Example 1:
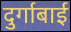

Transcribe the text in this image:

दुर्गाबाई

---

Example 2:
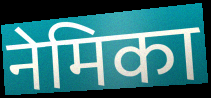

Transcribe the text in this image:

नेमिका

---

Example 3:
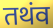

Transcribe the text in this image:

तथंव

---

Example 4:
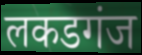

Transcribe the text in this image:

लकडगंज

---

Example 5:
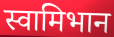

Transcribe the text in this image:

स्वामिभान